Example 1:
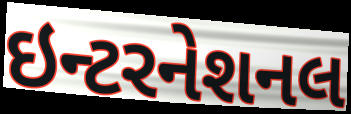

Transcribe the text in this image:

ઇન્ટરનેશનલ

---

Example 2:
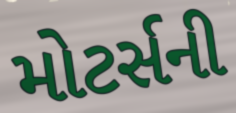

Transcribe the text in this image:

મોટર્સની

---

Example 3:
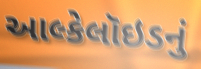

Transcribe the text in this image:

આલ્કેલૉઇડનું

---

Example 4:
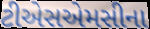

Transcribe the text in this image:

ટીએસએમસીના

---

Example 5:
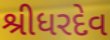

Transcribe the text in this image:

શ્રીધરદેવ